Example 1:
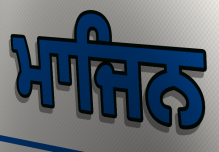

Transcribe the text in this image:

ਮਾਜਿਨ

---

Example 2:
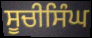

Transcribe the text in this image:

ਸੂਚੀਸਿੰਘ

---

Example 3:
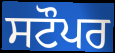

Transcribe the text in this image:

ਸਟੌਪਰ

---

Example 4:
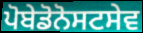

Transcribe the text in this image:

ਪੋਬੇਡੋਨੋਸਟਸੇਵ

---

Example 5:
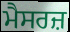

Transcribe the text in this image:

ਮੈਸਰਜ਼